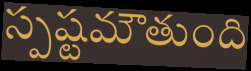
స్పష్టమౌతుంది